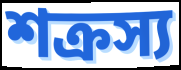
শক্রস্য